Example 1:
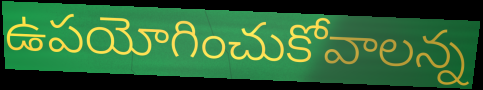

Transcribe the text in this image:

ఉపయోగించుకోవాలన్న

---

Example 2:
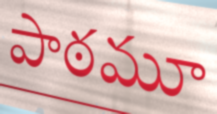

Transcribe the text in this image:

పాఠమూ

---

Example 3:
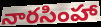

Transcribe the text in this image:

నారసింహా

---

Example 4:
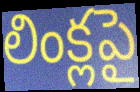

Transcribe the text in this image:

లింక్లపై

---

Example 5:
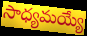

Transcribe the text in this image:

సాధ్యమయ్యే